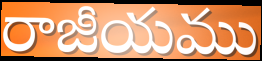
రాజీయము